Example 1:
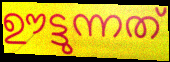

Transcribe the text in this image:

ഊട്ടുന്നത്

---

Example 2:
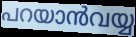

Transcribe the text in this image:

പറയാൻവയ്യ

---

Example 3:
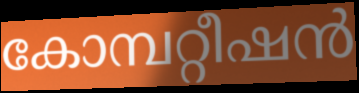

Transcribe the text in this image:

കോമ്പറ്റീഷൻ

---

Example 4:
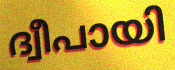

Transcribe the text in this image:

ദ്വീപായി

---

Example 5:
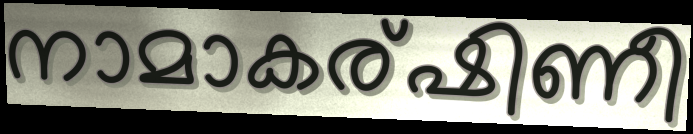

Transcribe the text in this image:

നാമാകര്ഷിണീ